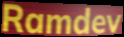
Ramdev